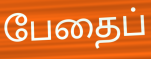
பேதைப்